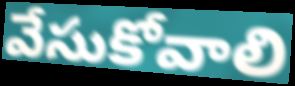
వేసుకోవాలి